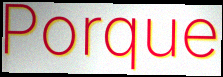
Porque